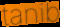
tanib